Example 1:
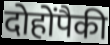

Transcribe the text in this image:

दोहोंपैकी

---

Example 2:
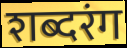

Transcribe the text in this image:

शब्दरंग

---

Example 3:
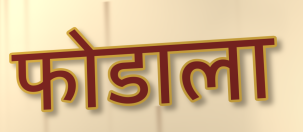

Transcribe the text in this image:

फोडाला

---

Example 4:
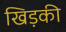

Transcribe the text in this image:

खिड़की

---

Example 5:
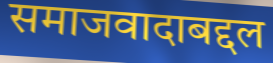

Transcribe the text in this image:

समाजवादाबद्दल